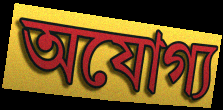
অযোগ্য